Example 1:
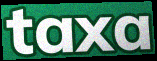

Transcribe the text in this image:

taxa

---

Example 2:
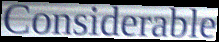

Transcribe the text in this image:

Considerable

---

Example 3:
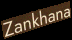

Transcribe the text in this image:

Zankhana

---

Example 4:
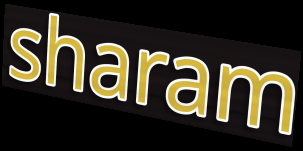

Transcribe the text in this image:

sharam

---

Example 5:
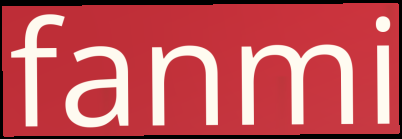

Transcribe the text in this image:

fanmi